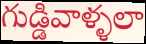
గుడ్డివాళ్ళలా